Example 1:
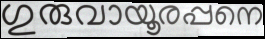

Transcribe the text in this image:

ഗുരുവായൂരപ്പനെ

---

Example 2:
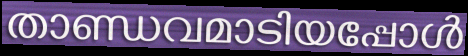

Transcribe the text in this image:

താണ്ഡവമാടിയപ്പോൾ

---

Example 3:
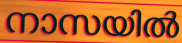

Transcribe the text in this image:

നാസയിൽ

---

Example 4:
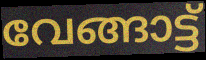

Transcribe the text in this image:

വേങ്ങാട്ട്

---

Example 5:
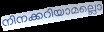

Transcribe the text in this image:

നിനക്കറിയാമല്ലൊ